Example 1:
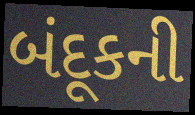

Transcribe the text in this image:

બંદૂકની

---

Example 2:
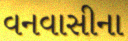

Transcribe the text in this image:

વનવાસીના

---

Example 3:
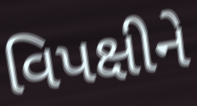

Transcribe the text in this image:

વિપક્ષીને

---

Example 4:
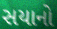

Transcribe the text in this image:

સયાનો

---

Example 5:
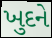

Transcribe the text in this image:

ખુદને